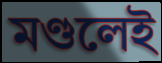
মণ্ডলেই